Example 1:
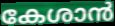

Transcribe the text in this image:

കേശാൻ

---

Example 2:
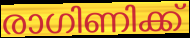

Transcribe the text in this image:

രാഗിണിക്ക്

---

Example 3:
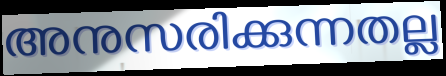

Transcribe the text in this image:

അനുസരിക്കുന്നതല്ല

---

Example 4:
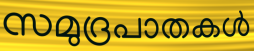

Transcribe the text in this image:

സമുദ്രപാതകൾ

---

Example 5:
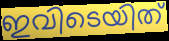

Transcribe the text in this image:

ഇവിടെയിത്